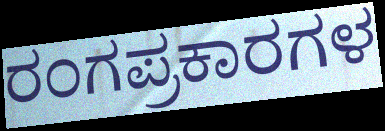
ರಂಗಪ್ರಕಾರಗಳ